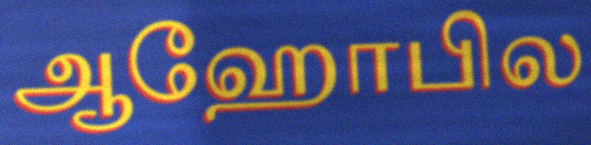
ஆஹோபில